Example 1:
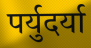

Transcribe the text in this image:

पर्युदर्या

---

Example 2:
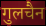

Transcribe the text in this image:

गुलचैन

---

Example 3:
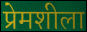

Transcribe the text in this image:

प्रेमशीला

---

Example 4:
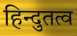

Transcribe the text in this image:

हिन्दुतत्व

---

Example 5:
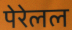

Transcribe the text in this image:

पेरेलल